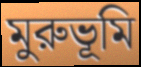
মুরুভূমি